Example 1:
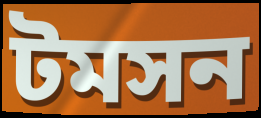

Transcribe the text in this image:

টমসন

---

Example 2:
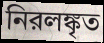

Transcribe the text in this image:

নিরলঙ্কৃত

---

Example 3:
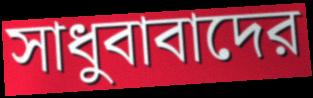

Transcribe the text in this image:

সাধুবাবাদের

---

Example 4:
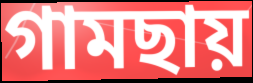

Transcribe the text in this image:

গামছায়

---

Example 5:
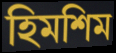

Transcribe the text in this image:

হিমশিম